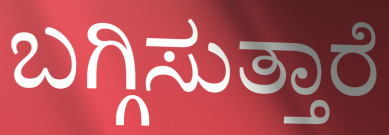
ಬಗ್ಗಿಸುತ್ತಾರೆ